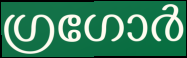
ഗ്രഗോർ